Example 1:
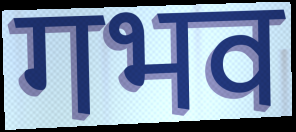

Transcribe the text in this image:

गभव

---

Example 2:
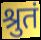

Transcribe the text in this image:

श्रुतं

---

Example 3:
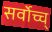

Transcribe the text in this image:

सर्वोच्च्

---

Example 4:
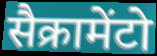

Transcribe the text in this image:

सैक्रामेंटो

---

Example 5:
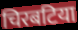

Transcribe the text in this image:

चिरबटिया